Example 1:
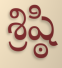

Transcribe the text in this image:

శ్రిష్ఠి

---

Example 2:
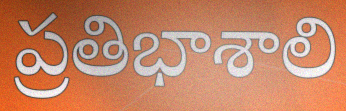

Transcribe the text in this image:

ప్రతిభాశాలి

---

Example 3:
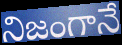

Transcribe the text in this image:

నిజంగానే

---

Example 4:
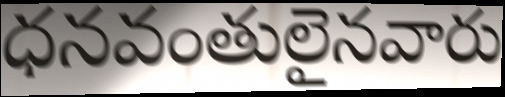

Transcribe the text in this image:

ధనవంతులైనవారు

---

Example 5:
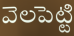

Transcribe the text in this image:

వెలపెట్టి